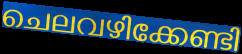
ചെലവഴിക്കേണ്ടി